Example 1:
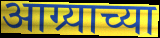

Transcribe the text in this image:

आग्र्याच्या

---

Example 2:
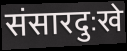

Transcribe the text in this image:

संसारदुःखे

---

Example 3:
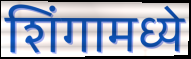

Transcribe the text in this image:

शिंगामध्ये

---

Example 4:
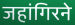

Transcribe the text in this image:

जहांगिरने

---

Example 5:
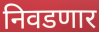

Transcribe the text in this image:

निवडणार